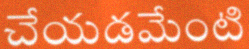
చేయడమేంటి